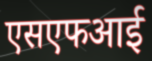
एसएफआई